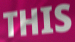
THIS